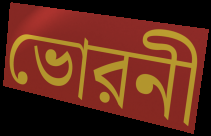
ভোরনী